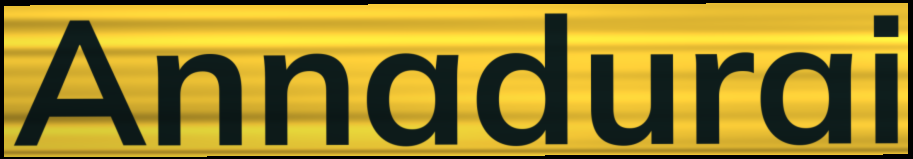
Annadurai